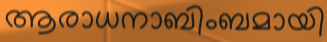
ആരാധനാബിംബമായി